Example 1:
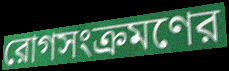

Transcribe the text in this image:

রোগসংক্রমণের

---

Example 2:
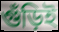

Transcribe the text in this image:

গুঁড়িই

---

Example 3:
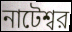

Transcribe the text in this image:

নাটেশ্বর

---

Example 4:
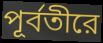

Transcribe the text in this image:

পূর্বতীরে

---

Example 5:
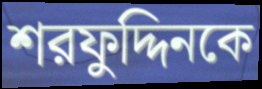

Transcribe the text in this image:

শরফুদ্দিনকে